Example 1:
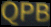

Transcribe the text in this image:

QPB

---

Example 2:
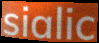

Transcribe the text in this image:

sialic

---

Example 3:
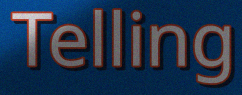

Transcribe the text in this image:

Telling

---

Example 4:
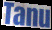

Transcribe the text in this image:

Tanu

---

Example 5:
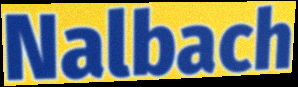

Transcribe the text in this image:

Nalbach